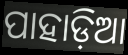
ପାହାଡ଼ିଆ